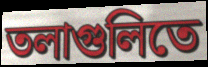
তলাগুলিতে